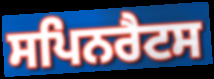
ਸਪਿਨਰੈਟਸ